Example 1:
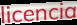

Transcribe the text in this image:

licencia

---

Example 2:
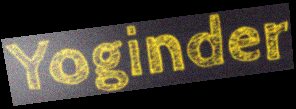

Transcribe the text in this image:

Yoginder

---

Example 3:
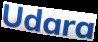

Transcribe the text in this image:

Udara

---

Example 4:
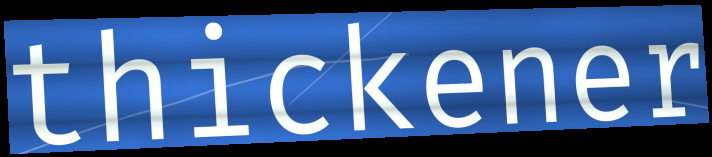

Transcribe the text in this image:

thickener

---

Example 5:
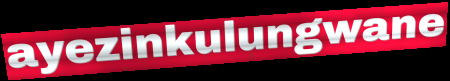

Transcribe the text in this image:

ayezinkulungwane